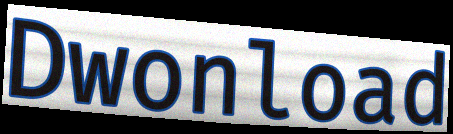
Dwonload